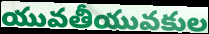
యువతీయువకుల